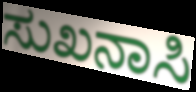
ಸುಖನಾಸಿ